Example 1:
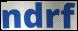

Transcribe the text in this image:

ndrf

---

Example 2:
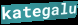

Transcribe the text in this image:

kategalu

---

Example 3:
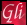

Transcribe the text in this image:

Gli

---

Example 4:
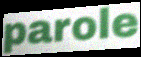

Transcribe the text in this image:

parole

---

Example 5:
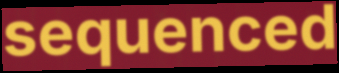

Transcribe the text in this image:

sequenced